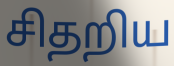
சிதறிய